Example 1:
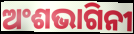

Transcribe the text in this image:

ଅଂଶଭାଗିନୀ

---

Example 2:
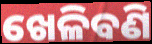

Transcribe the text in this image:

ଖେଳିବଣି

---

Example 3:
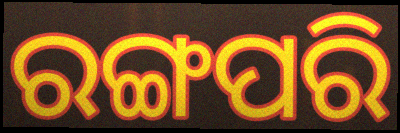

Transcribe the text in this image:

ରଙ୍ଗପରି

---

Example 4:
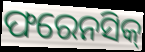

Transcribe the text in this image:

ଫରେନସିକ୍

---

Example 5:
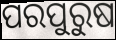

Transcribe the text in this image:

ପରପୁରୁଷ